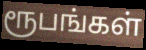
ரூபங்கள்